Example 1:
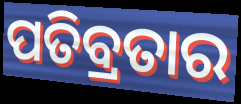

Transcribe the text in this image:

ପତିବ୍ରତାର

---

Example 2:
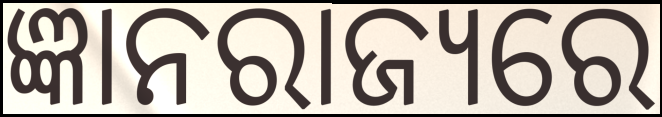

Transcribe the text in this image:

ଜ୍ଞାନରାଜ୍ୟରେ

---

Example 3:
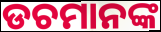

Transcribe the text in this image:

ଡଚମାନଙ୍କ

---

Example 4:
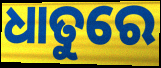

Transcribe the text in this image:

ଧାତୁରେ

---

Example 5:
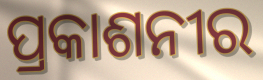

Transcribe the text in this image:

ପ୍ରକାଶନୀର